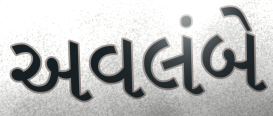
અવલંબે